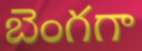
బెంగగా